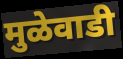
मुळेवाडी